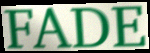
FADE